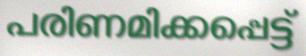
പരിണമിക്കപ്പെട്ട്